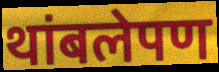
थांबलेपण